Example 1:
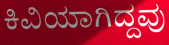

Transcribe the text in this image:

ಕಿವಿಯಾಗಿದ್ದವು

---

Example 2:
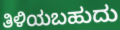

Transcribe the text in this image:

ತಿಳಿಯಬಹುದು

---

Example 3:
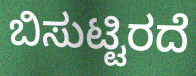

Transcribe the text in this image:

ಬಿಸುಟ್ಟಿರದೆ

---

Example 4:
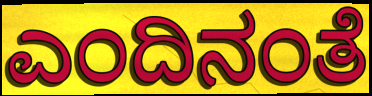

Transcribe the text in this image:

ಎಂದಿನಂತೆ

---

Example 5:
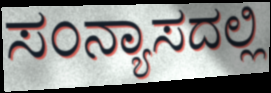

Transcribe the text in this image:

ಸಂನ್ಯಾಸದಲ್ಲಿ